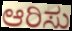
ಆರಿಸು